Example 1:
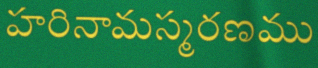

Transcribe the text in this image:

హరినామస్మరణము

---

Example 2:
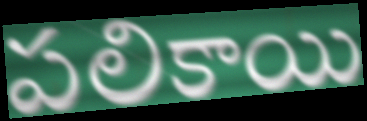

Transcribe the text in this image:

పలికాయి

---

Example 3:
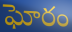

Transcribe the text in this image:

ఘోరం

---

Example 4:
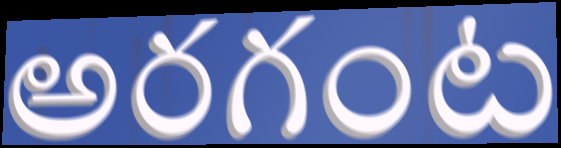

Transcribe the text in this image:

అరగంట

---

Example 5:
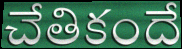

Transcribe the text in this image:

చేతికందే